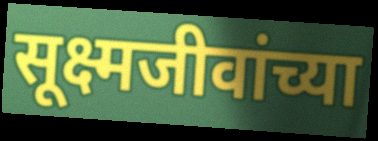
सूक्ष्मजीवांच्या